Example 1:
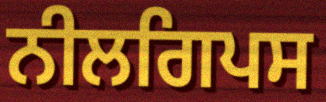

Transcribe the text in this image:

ਨੀਲਗਿਪਸ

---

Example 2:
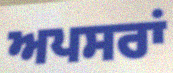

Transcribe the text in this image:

ਅਪਸਰਾਂ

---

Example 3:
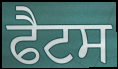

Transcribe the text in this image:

ਫੈਟਸ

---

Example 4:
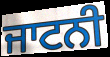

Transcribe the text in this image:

ਜਾਟਨੀ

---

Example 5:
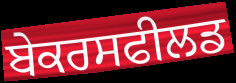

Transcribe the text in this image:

ਬੇਕਰਸਫੀਲਡ